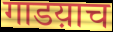
गाडय़ाच